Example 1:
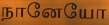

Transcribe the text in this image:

நானேயோ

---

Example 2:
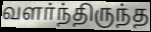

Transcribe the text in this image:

வளர்ந்திருந்த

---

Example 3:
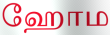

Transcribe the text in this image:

ஹோம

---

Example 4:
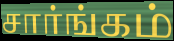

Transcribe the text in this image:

சார்ங்கம்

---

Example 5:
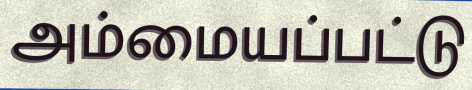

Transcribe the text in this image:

அம்மையப்பட்டு